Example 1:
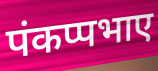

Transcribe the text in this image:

पंकप्पभाए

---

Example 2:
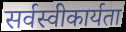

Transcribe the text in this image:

सर्वस्वीकार्यता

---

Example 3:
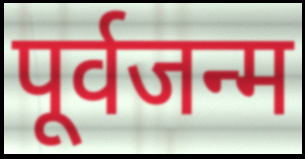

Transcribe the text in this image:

पूर्वजन्म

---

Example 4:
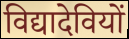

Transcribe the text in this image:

विद्यादेवियों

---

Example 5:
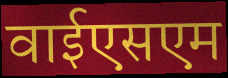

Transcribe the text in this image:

वाईएसएम